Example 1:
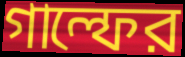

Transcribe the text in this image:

গাল্ফের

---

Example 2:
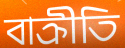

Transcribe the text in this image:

বাক্রীতি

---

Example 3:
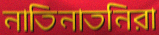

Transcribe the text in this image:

নাতিনাতনিরা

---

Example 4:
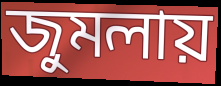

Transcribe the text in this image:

জুমলায়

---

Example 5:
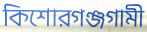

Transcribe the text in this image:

কিশোরগঞ্জগামী